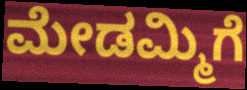
ಮೇಡಮ್ಮಿಗೆ